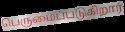
பெருமைப்படுகிறார்